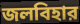
জলবিহার